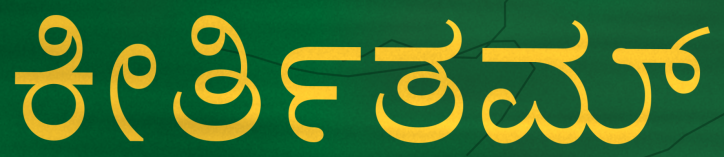
ಕೀರ್ತಿತಮ್